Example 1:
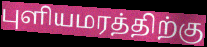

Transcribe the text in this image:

புளியமரத்திற்கு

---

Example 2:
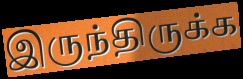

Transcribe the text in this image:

இருந்திருக்க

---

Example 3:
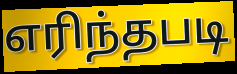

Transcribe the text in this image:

எரிந்தபடி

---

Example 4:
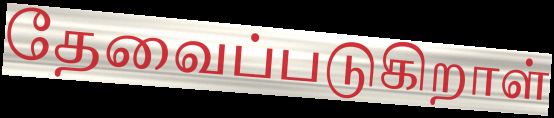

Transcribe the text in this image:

தேவைப்படுகிறாள்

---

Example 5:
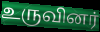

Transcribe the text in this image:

உருவினர்